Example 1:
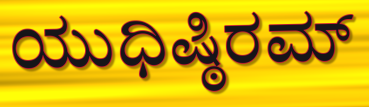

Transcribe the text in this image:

ಯುಧಿಷ್ಠಿರಮ್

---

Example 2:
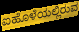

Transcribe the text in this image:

ಐಹೊಳೆಯಲ್ಲಿರುವ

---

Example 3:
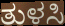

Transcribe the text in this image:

ತುಳಸಿ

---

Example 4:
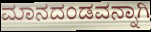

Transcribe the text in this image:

ಮಾನದಂಡವನ್ನಾಗಿ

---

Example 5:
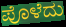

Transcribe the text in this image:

ಪೊಳೆದು